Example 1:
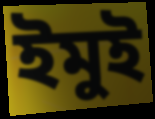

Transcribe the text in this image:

ইমুই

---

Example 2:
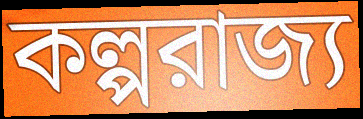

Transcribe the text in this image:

কল্পরাজ্য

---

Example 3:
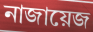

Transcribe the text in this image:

নাজায়েজ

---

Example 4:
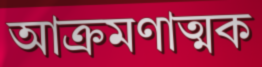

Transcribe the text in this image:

আক্রমণাত্মক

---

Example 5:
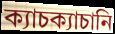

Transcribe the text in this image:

ক্যাচক্যাচানি